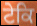
ਟੇਕਿ